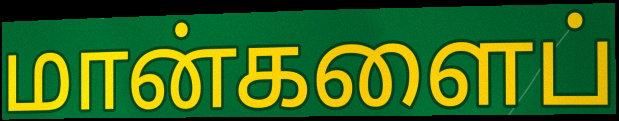
மான்களைப்